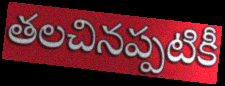
తలచినప్పటికీ